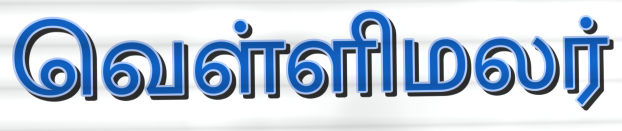
வெள்ளிமலர்